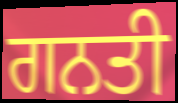
ਗਨਤੀ